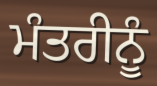
ਮੰਤਰੀਨੂੰ